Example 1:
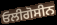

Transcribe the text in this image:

ਓਲੀਗੋਸੀਨ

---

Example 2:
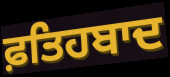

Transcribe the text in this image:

ਫ਼ਤਿਹਬਾਦ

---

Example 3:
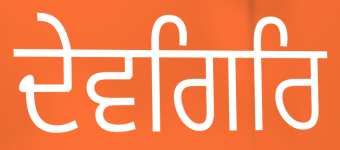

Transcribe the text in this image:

ਦੇਵਗਿਰਿ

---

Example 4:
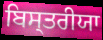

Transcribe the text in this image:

ਬਿਸ੍ਤਰੀਯਾ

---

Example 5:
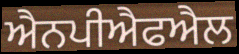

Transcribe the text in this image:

ਐਨਪੀਐਫਐਲ